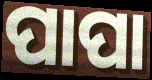
ପାପା